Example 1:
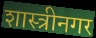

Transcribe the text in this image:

शास्त्रीनगर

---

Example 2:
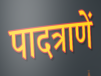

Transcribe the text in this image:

पादत्राणें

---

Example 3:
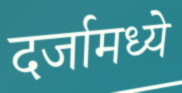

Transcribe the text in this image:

दर्जामध्ये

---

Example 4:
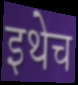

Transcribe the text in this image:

इथेच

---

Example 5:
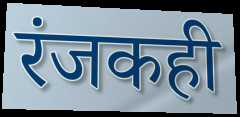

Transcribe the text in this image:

रंजकही